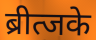
ब्रीत्जके